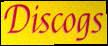
Discogs